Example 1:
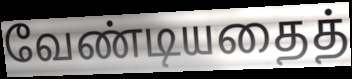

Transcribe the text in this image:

வேண்டியதைத்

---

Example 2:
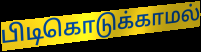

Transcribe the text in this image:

பிடிகொடுக்காமல்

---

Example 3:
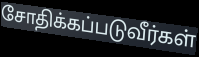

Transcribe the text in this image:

சோதிக்கப்படுவீர்கள்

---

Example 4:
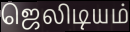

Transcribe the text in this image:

ஜெலிடியம்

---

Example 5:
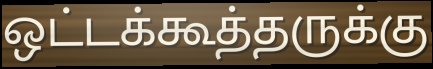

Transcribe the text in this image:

ஒட்டக்கூத்தருக்கு